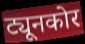
ट्यूनकोर